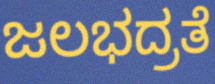
ಜಲಭದ್ರತೆ